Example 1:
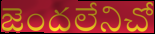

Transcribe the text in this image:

జెందలేనిచో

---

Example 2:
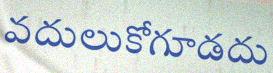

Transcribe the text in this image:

వదులుకోగూడదు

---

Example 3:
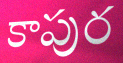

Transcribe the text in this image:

కాపుర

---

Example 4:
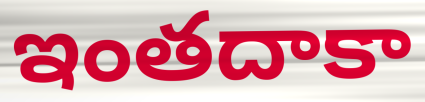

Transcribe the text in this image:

ఇంతదాకా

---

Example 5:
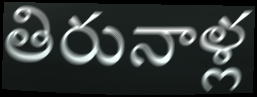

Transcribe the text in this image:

తిరునాళ్ల